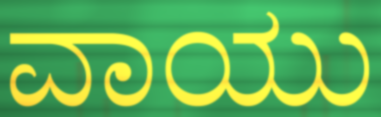
ವಾಯು